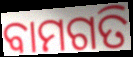
ବାମଗତି